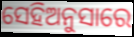
ସେହିଅନୁସାରେ